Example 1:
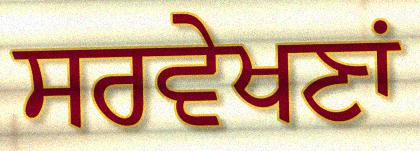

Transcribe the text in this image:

ਸਰਵੇਖਣਾਂ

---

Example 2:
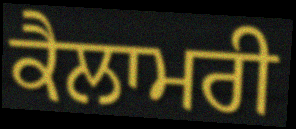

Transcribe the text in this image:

ਕੈਲਾਮਰੀ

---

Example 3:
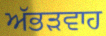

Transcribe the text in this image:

ਅੱਭੜਵਾਹ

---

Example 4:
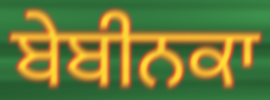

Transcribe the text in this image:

ਬੇਬੀਨਕਾ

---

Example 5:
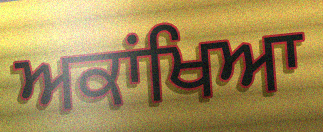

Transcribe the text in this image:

ਅਕਾਂਖਿਆ